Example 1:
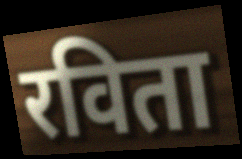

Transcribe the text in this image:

रविता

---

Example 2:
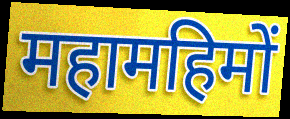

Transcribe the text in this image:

महामहिमों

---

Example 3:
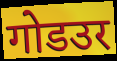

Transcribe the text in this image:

गोडउर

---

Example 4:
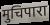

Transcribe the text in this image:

मुचिपारा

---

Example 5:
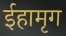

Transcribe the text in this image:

ईहामृग